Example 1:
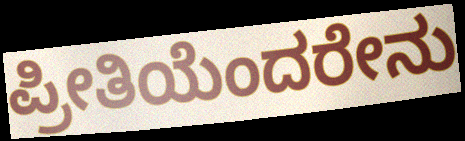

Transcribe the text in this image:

ಪ್ರೀತಿಯೆಂದರೇನು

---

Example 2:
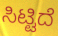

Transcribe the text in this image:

ಸಿಟ್ಟಿದೆ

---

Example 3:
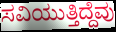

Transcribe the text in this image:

ಸವಿಯುತ್ತಿದ್ದೆವು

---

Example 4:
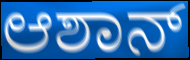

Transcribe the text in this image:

ಆಶಾನ್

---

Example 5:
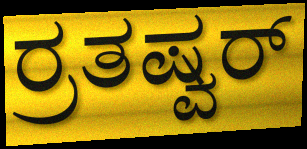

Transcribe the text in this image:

ರ್ರತಷ್ವರ್